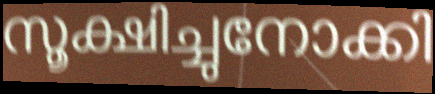
സൂക്ഷിച്ചുനോക്കി